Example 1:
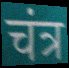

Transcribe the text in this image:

चंत्र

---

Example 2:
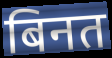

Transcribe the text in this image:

बिनत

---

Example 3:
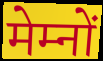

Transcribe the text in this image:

मेम्नों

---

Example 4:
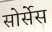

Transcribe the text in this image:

सोर्सेस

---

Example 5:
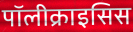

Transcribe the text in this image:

पॉलीक्राइसिस